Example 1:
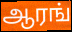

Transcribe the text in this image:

ஆரங்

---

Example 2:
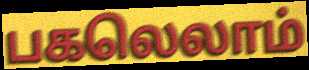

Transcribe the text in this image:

பகலெலாம்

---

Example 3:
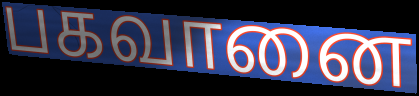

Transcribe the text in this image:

பகவானை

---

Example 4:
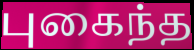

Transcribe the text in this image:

புகைந்த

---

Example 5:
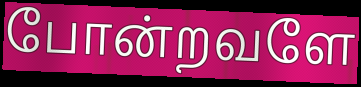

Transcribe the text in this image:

போன்றவளே